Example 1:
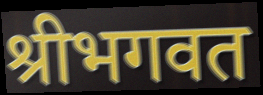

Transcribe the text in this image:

श्रीभगवत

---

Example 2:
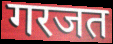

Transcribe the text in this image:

गरजत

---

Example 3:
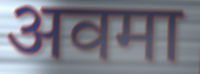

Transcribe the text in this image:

अवमा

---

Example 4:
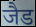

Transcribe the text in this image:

जैड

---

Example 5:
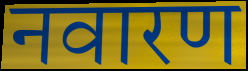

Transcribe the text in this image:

नवारण